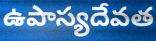
ఉపాస్యదేవత